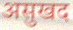
असुखद